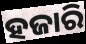
ହଜାରି